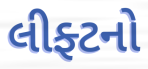
લીફ્ટનો